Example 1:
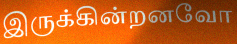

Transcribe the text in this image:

இருக்கின்றனவோ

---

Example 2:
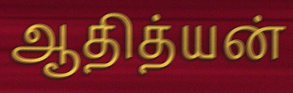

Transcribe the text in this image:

ஆதித்யன்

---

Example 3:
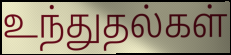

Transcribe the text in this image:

உந்துதல்கள்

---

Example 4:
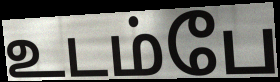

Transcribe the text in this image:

உடம்பே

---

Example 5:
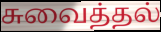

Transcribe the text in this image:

சுவைத்தல்